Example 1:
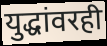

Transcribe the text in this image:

युद्धांवरही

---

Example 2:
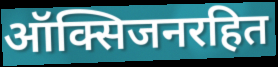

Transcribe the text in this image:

ऑक्सिजनरहित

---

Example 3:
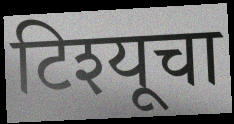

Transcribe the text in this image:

टिश्यूचा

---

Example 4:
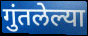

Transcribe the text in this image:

गुंतलेल्या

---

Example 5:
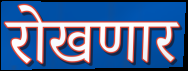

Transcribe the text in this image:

रोखणार